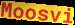
Moosvi